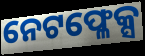
ନେଟଫ୍ଳେକ୍ସ